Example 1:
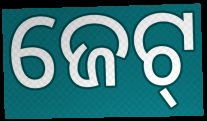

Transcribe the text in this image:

ଜେଟ୍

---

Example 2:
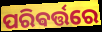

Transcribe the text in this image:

ପରିଵର୍ତ୍ତରେ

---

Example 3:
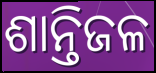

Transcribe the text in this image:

ଶାନ୍ତିଜଳ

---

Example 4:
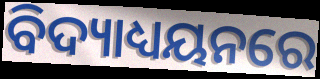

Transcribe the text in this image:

ବିଦ୍ୟାଧ୍ୟୟନରେ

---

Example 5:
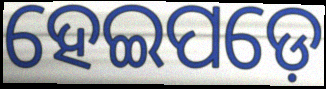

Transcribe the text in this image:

ହେଇପଡ଼େ